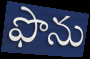
ఫొను